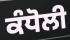
ਕੰਧੋਲੀ